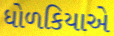
ધોળકિયાએ